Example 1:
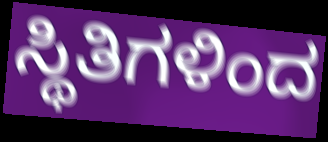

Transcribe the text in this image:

ಸ್ಥಿತಿಗಳಿಂದ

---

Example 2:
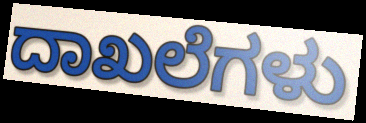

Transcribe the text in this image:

ದಾಖಲೆಗಳು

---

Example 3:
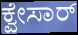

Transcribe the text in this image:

ಕ್ವೇಸಾರ್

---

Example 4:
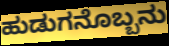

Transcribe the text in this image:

ಹುಡುಗನೊಬ್ಬನು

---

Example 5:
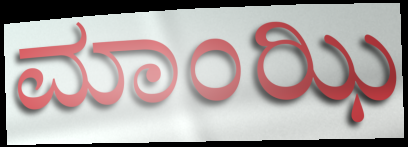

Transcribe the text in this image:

ಮಾಂಝಿ